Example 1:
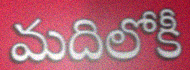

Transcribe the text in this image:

మదిలోకీ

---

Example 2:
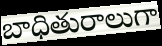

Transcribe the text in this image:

బాధితురాలుగా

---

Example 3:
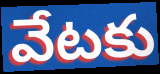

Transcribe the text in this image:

వేటకు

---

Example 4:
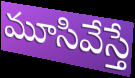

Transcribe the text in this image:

మూసివేస్తే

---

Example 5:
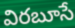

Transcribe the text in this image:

విరబూసే